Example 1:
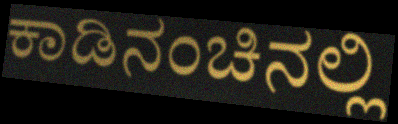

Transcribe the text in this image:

ಕಾಡಿನಂಚಿನಲ್ಲಿ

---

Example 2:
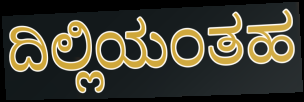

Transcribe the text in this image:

ದಿಲ್ಲಿಯಂತಹ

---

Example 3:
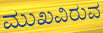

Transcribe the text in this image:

ಮುಖವಿರುವ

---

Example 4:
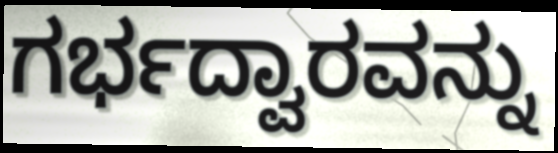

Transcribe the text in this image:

ಗರ್ಭದ್ವಾರವನ್ನು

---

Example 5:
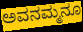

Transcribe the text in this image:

ಅವನಮ್ಮನೂ